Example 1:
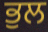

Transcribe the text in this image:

ਭੁਲ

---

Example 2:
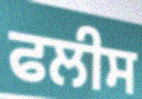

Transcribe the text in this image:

ਫਲੀਸ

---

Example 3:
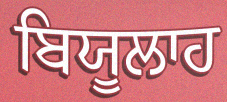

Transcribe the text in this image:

ਬਿਯੂਲਾਹ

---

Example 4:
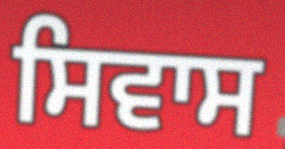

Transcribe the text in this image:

ਸਿਵਾਸ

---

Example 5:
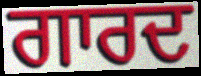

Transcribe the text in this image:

ਗਾਰਦ